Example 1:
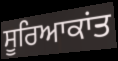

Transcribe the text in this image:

ਸੂਰਿਆਕਾਂਤ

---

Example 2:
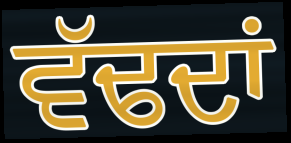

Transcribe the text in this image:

ਵੱਢਦਾਂ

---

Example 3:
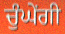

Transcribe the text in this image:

ਚੁੰਘੇਂਗੀ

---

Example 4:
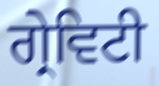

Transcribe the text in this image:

ਗ੍ਰੇਵਿਟੀ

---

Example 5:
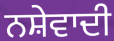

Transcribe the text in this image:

ਨਸ਼ੇਵਾਦੀ